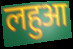
लहुआ